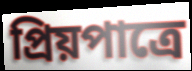
প্রিয়পাত্রে